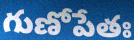
గుణోపేతః